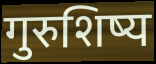
गुरुशिष्य